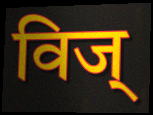
विज्